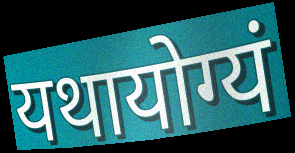
यथायोग्यं